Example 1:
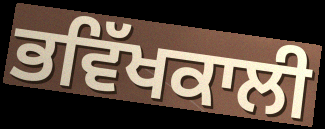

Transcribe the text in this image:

ਭਵਿੱਖਕਾਲੀ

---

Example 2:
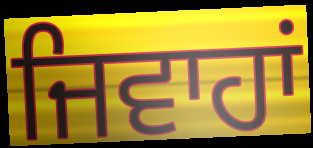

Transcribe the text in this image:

ਜਿਵਾਹਾਂ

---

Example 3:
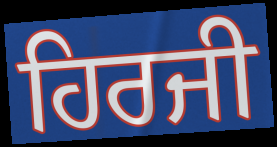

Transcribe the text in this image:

ਹਿਰਜੀ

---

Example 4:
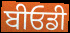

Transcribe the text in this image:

ਬੀਓਡੀ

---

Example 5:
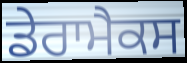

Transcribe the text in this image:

ਡੇਰਾਮੈਕਸ